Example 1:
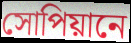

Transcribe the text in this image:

সোপিয়ানে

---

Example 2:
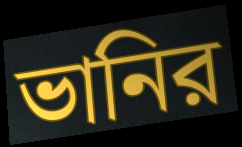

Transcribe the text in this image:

ভানির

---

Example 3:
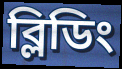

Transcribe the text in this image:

ব্লিডিং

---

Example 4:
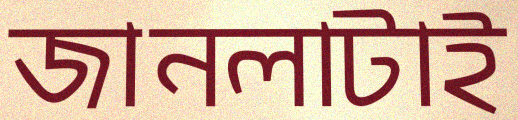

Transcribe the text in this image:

জানলাটাই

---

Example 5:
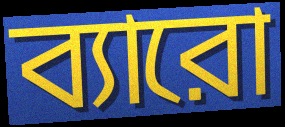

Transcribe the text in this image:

ব্যারো